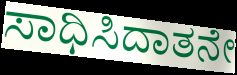
ಸಾಧಿಸಿದಾತನೇ